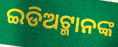
ଇଡିଅଟ୍ମାନଙ୍କ